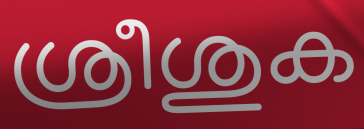
ശ്രീശുക